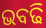
ଭବଢି